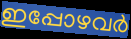
ഇപ്പോഴവർ